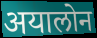
अयालोन